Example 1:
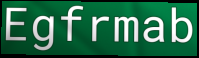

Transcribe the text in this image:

Egfrmab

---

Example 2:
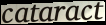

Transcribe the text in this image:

cataract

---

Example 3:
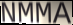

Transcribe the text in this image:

NMMA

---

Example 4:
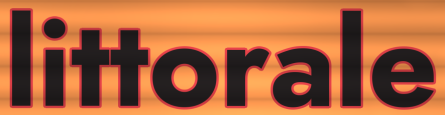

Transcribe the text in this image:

littorale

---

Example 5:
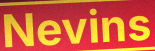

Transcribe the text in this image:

Nevins